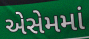
એસેમમાં